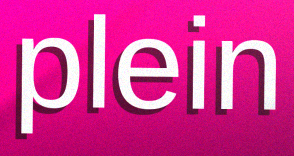
plein